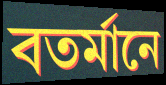
বতর্মানে